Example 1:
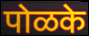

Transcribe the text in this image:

पोळके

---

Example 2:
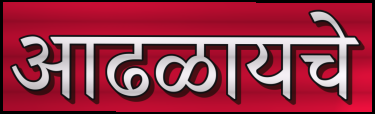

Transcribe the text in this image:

आढळायचे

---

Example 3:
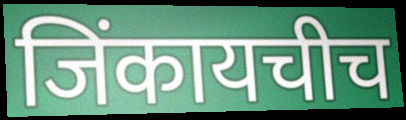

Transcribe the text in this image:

जिंकायचीच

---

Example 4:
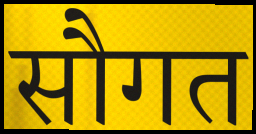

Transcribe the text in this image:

सौगत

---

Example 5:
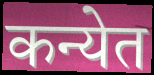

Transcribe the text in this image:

कन्येत